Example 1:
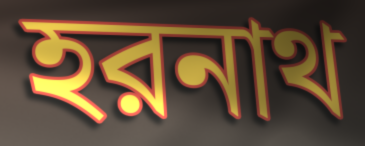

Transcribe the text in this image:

হরনাথ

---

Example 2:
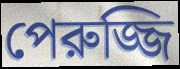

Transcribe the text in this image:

পেরুজ্জি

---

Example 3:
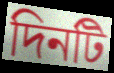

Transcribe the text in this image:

দিনটি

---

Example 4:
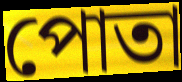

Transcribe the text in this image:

পোতা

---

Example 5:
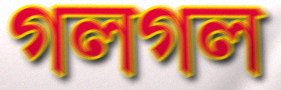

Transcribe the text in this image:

গলগল